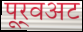
पूर्वअट